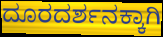
ದೂರದರ್ಶನಕ್ಕಾಗಿ